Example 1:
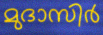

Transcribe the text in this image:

മുദാസിർ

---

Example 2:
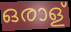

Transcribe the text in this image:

ഒരാള്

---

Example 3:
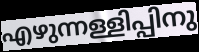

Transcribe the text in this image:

എഴുന്നള്ളിപ്പിനു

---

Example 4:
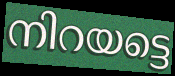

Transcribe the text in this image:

നിറയട്ടെ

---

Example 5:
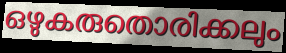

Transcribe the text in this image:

ഒഴുകരുതൊരിക്കലും